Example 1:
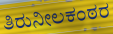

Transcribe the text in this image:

ತಿರುನೀಲಕಂಠರ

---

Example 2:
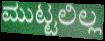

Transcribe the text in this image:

ಮುಟ್ಟಲಿಲ್ಲ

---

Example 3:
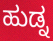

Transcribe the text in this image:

ಹುಡ್ನ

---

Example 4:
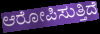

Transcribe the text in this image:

ಆರೋಪಿಸುತ್ತಿದೆ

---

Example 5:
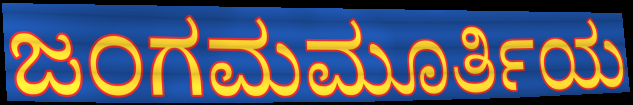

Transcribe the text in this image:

ಜಂಗಮಮೂರ್ತಿಯ